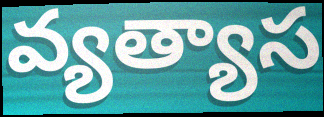
వ్యత్యాస